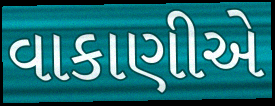
વાકાણીએ